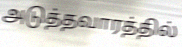
அடுத்தவாரத்தில்